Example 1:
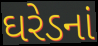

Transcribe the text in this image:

ઘરેડનાં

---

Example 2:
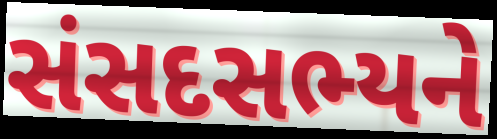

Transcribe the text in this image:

સંસદસભ્યને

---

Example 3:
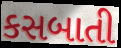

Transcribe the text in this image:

કસબાતી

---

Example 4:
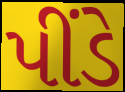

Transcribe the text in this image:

પીંડે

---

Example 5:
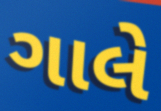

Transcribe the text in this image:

ગાલે